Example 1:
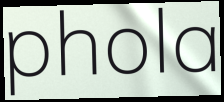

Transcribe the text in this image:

phola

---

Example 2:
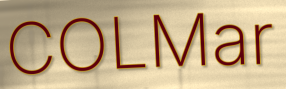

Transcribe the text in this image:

COLMar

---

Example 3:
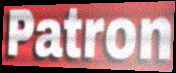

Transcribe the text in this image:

Patron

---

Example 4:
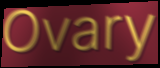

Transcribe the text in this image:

Ovary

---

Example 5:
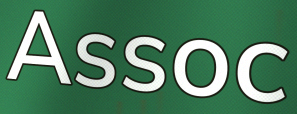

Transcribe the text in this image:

Assoc